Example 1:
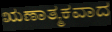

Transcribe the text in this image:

ಋಣಾತ್ಮಕವಾದ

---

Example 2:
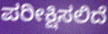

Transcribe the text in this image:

ಪರೀಕ್ಷಿಸಲಿದೆ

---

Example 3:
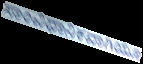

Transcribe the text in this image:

ಸಾಂವಿಧಾನಿಕವಾಗಿಯೂ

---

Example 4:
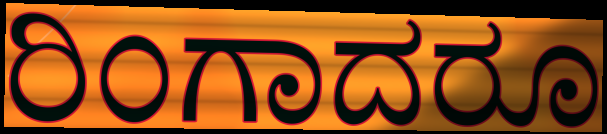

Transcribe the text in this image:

ರಿಂಗಾದರೂ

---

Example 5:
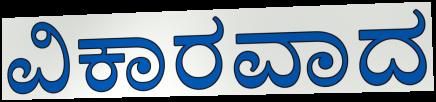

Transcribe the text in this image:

ವಿಕಾರವಾದ